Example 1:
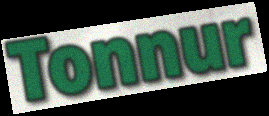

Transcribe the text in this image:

Tonnur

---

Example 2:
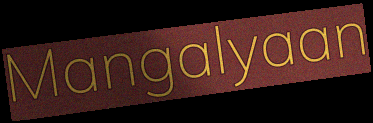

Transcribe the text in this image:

Mangalyaan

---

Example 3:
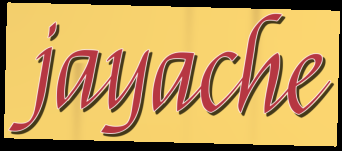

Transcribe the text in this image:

jayache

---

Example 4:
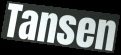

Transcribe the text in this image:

Tansen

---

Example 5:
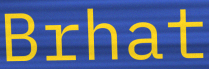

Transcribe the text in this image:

Brhat